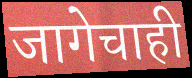
जागेचाही